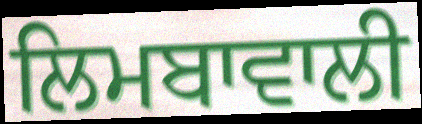
ਲਿਮਬਾਵਾਲੀ